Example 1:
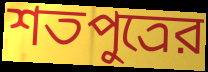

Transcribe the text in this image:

শতপুত্রের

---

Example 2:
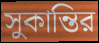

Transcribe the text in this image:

সুকান্তির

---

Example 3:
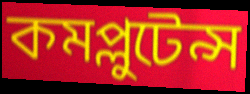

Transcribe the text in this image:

কমপ্লুটেন্স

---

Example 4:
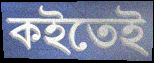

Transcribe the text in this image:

কইতেই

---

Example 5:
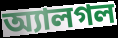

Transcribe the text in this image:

অ্যালগল